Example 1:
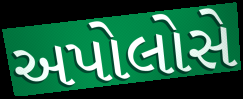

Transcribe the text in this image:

અપોલોસે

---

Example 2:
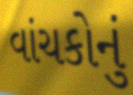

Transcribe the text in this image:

વાંચકોનું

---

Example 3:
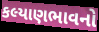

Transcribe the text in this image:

કલ્યાણભાવનો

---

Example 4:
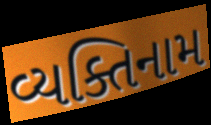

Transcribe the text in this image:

વ્યક્તિનામ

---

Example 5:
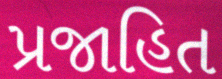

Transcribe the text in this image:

પ્રજાહિત